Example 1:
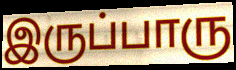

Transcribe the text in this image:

இருப்பாரு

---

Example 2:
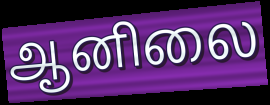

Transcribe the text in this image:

ஆனிலை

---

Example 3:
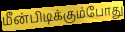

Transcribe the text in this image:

மீன்பிடிக்கும்போது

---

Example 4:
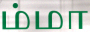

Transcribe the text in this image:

ம்மா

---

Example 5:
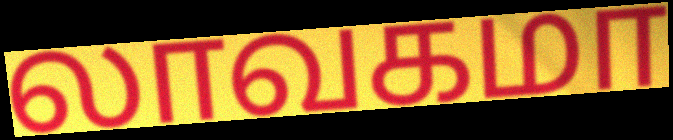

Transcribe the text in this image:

லாவகமா